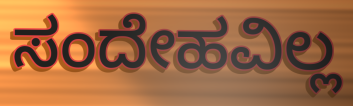
ಸಂದೇಹವಿಲ್ಲ